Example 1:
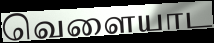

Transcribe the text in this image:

வெளையாட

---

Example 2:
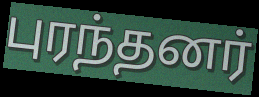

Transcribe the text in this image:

புரந்தனர்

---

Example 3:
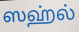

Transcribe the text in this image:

ஸஹ்ல்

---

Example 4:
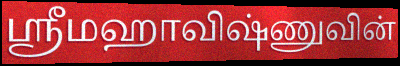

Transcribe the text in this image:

ஸ்ரீமஹாவிஷ்ணுவின்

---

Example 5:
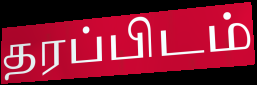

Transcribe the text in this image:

தரப்பிடம்